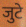
जुटे